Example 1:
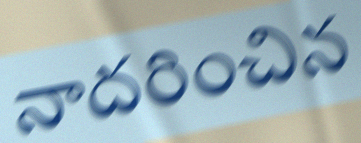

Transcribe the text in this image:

నాదరించిన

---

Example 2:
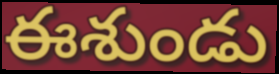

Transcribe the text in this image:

ఈశుండు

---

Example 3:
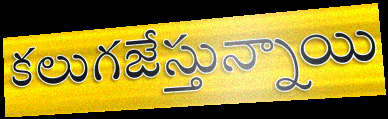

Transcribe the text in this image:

కలుగజేస్తున్నాయి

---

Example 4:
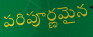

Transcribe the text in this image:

పరిపూర్ణమైన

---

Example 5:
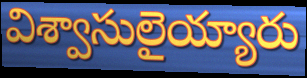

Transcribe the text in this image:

విశ్వాసులైయ్యారు